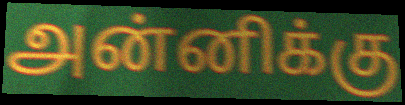
அன்னிக்கு